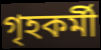
গৃহকর্মী